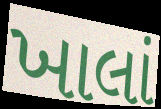
ખાલાં